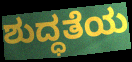
ಶುದ್ಧತೆಯ